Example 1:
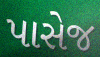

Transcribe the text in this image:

પાસેજ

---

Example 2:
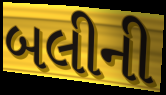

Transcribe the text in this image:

બલીની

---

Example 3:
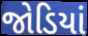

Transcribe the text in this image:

જોડિયાં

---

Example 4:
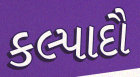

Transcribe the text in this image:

કલ્પાદૌ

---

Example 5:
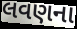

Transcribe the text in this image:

લવણના